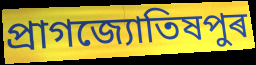
প্ৰাগজ্যোতিষপুৰ